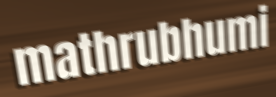
mathrubhumi